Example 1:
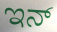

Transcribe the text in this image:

ಇನ್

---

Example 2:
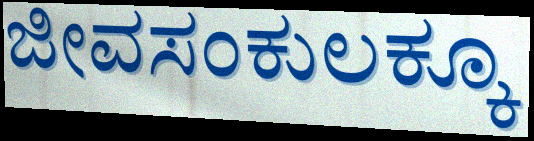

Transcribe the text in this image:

ಜೀವಸಂಕುಲಕ್ಕೂ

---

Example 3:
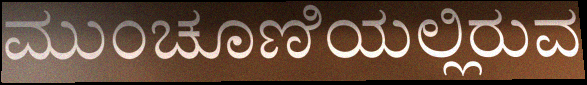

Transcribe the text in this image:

ಮುಂಚೂಣಿಯಲ್ಲಿರುವ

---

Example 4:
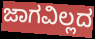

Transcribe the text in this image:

ಜಾಗವಿಲ್ಲದ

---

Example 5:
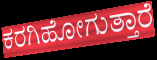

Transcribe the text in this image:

ಕರಗಿಹೋಗುತ್ತಾರೆ